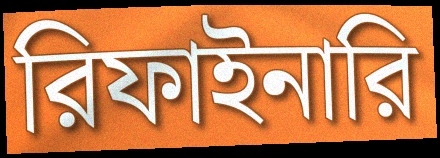
রিফাইনারি